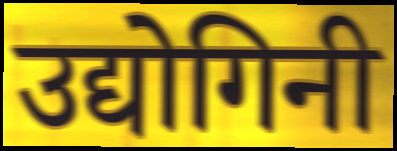
उद्योगिनी